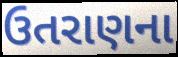
ઉતરાણના